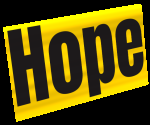
Hope